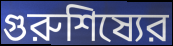
গুরুশিষ্যের